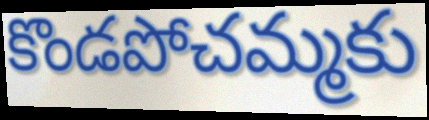
కొండపోచమ్మకు